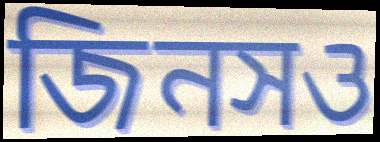
জিনসও